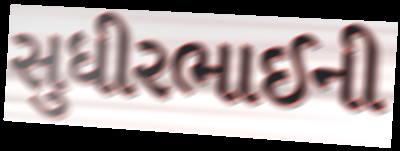
સુધીરભાઈની